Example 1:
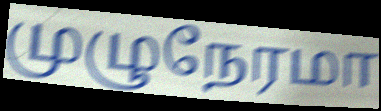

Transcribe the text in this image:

முழுநேரமா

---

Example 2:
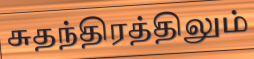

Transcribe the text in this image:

சுதந்திரத்திலும்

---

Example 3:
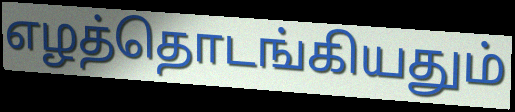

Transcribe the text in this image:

எழத்தொடங்கியதும்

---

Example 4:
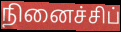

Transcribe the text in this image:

நினைச்சிப்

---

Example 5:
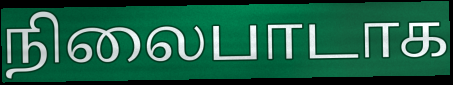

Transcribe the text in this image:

நிலைபாடாக